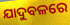
ଯାଦୁବଳରେ